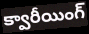
క్వారీయింగ్